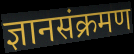
ज्ञानसंक्रमण